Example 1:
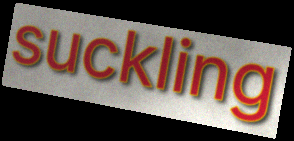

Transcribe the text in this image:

suckling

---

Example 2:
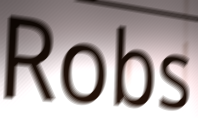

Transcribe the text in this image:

Robs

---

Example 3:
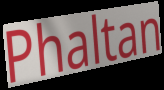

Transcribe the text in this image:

Phaltan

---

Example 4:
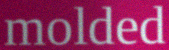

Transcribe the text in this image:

molded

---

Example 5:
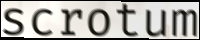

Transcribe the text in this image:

scrotum